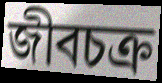
জীবচক্র